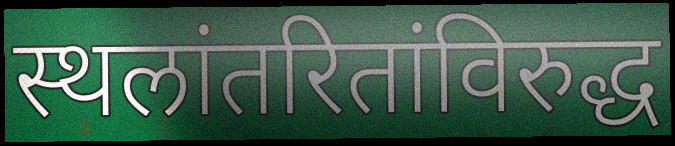
स्थलांतरितांविरुद्ध